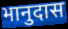
भानुदास